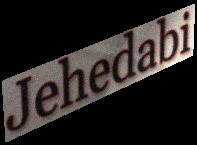
Jehedabi